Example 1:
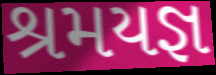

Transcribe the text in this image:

શ્રમયજ્ઞ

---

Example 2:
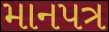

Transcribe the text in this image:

માનપત્ર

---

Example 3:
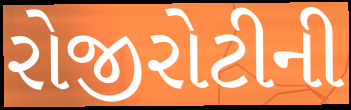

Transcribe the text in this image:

રોજીરોટીની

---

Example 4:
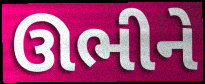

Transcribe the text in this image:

ઊભીને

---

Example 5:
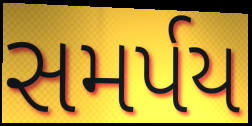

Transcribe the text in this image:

સમર્પય